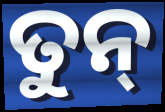
ତୁନ୍